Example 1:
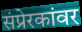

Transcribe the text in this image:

संप्रेरकांवर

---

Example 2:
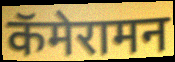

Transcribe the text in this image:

कॅमेरामन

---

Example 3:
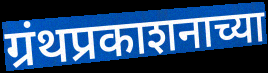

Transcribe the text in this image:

ग्रंथप्रकाशनाच्या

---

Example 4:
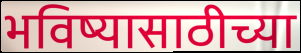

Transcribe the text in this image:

भविष्यासाठीच्या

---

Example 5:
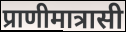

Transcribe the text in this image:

प्राणीमात्रासी